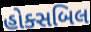
હોક્સબિલ